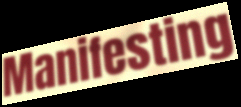
Manifesting